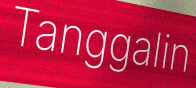
Tanggalin